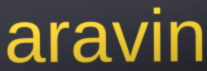
aravin